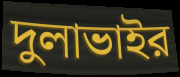
দুলাভাইর